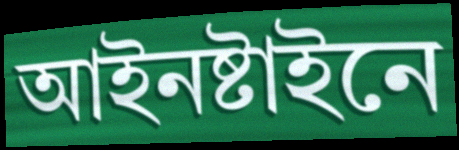
আইনষ্টাইনে